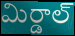
మిర్డాల్